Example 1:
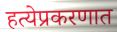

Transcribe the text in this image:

हत्येप्रकरणात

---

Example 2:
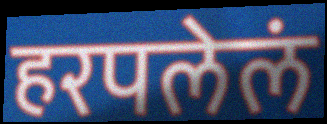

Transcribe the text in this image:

हरपलेलं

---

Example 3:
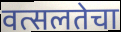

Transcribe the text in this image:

वत्सलतेचा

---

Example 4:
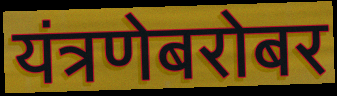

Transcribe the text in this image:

यंत्रणेबरोबर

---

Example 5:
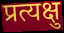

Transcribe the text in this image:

प्रत्यक्षु